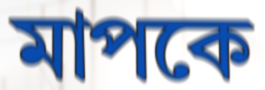
মাপকে